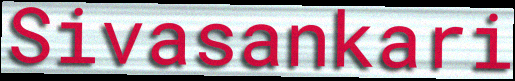
Sivasankari